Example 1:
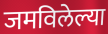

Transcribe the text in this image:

जमविलेल्या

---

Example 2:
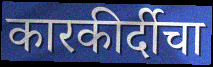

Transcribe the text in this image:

कारकीर्दीचा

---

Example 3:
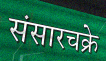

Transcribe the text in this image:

संसारचक्रे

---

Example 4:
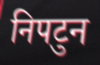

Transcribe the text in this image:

निपटुन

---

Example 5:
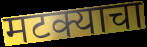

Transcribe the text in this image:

मटक्याचा